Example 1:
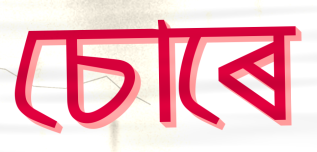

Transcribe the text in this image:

চোৰে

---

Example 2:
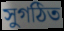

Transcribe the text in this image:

সুগঠিত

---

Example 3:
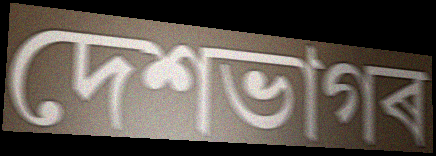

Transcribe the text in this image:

দেশভাগৰ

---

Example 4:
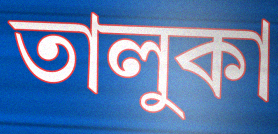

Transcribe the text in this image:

তালুকা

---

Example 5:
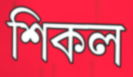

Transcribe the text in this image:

শিকল